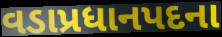
વડાપ્રધાનપદના